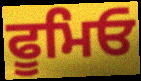
ਫੂਮਿਓ